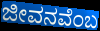
ಜೀವನವೆಂಬ